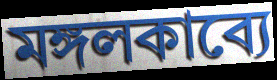
মঙ্গলকাব্যে